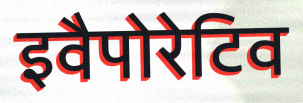
इवैपोरेटिव